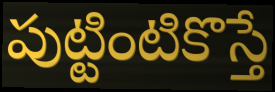
పుట్టింటికొస్తే